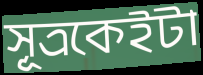
সূত্ৰকেইটা